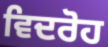
ਵਿਦਰੋਹ